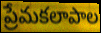
ప్రేమకలాపాల